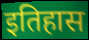
इतिहास